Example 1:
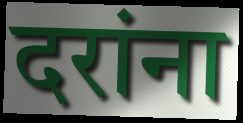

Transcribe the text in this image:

दरांना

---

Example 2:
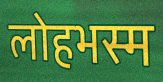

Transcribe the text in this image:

लोहभस्म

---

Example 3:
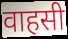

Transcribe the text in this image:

वाहसी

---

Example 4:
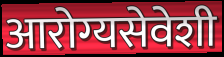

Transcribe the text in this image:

आरोग्यसेवेशी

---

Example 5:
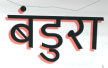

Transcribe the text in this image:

बंडुरा